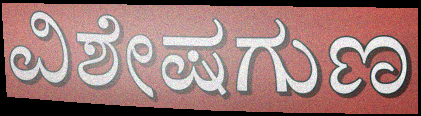
ವಿಶೇಷಗುಣ